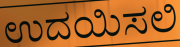
ಉದಯಿಸಲಿ